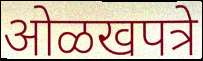
ओळखपत्रे